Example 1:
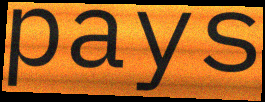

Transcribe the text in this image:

pays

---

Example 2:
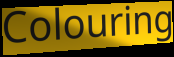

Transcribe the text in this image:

Colouring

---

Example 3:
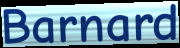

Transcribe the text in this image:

Barnard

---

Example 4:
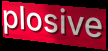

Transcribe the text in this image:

plosive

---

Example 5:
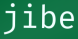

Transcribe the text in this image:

jibe